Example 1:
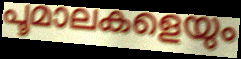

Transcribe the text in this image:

പൂമാലകളെയും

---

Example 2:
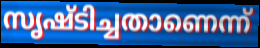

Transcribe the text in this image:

സൃഷ്ടിച്ചതാണെന്ന്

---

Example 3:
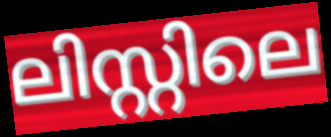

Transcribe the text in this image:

ലിസ്റ്റിലെ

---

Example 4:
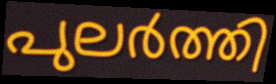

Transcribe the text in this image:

പുലർത്തി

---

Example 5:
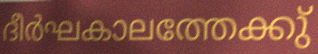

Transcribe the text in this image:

ദീർഘകാലത്തേക്കു്